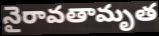
నైరావతామృత